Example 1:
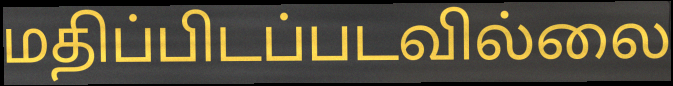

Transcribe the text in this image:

மதிப்பிடப்படவில்லை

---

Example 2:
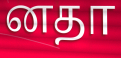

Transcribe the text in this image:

னதா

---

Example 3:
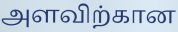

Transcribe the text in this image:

அளவிற்கான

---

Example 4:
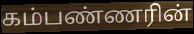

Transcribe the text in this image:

கம்பண்ணரின்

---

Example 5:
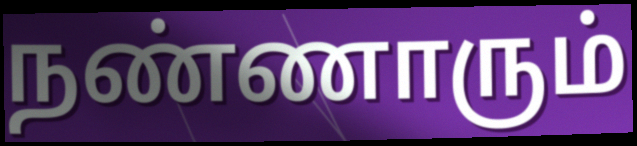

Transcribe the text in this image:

நண்ணாரும்